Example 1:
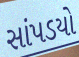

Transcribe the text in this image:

સાંપડયો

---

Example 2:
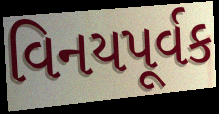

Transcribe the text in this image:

વિનયપૂર્વક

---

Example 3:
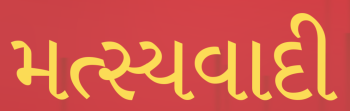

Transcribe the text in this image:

મત્સ્યવાદી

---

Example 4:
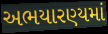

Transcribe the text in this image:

અભયારણ્યમાં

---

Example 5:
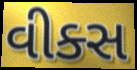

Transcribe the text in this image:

વીક્સ